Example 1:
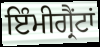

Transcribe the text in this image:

ਇੰਮੀਗ੍ਰੈਂਟਾਂ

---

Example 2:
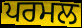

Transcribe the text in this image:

ਪਰਮਲ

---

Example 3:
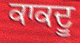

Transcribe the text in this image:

ਕਾਕਦੂ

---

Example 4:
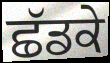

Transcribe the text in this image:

ਛੱਡਕੇ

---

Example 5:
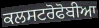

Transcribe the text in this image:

ਕਲਸਟਰੋਫੋਬੀਆ